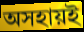
অসহায়ই